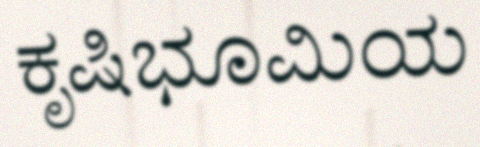
ಕೃಷಿಭೂಮಿಯ